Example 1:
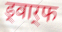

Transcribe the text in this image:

ड्वार्फ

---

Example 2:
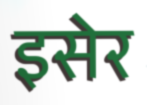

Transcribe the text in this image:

इसेर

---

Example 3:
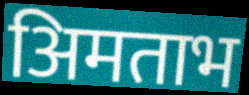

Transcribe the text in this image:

अिमताभ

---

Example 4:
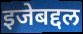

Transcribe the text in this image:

इजेबद्दल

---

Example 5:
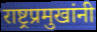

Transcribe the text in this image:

राष्ट्रप्रमुखांनी